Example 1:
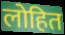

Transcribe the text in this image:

लोहित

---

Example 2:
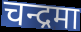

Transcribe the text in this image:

चन्द्रमा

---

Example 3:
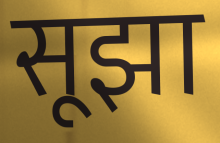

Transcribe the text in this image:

सूझा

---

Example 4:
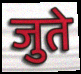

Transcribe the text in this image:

जुते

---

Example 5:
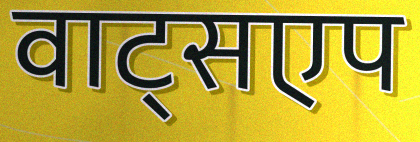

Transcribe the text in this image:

वाट्सएप